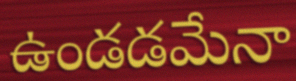
ఉండడమేనా